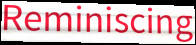
Reminiscing